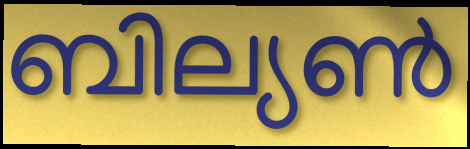
ബില്യൺ